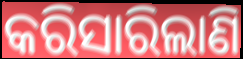
କରିସାରିଲାଣି